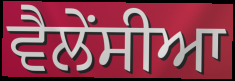
ਵੈਲੇਂਸੀਆ